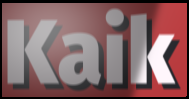
Kaik